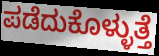
ಪಡೆದುಕೊಳ್ಳುತ್ತೆ